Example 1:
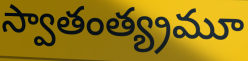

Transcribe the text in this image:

స్వాతంత్య్రమూ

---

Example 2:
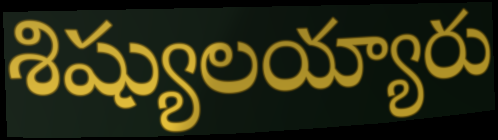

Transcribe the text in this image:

శిష్యులయ్యారు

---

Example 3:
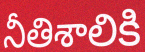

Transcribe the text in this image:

నీతిశాలికి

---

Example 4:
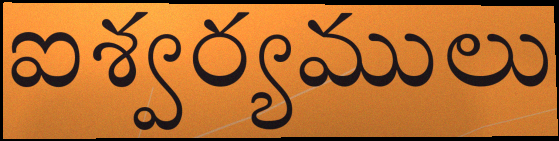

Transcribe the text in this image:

ఐశ్వర్యములు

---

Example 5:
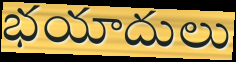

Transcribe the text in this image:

భయాదులు